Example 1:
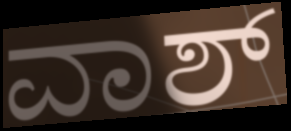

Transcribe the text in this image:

ವಾಶ್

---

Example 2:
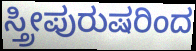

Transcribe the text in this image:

ಸ್ತ್ರೀಪುರುಷರಿಂದ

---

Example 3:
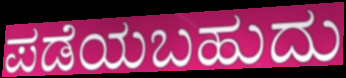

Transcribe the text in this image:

ಪಡೆಯಬಹುದು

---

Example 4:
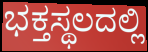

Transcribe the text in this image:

ಭಕ್ತಸ್ಥಲದಲ್ಲಿ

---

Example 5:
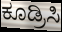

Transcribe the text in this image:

ಕೂಡ್ರಿಸಿ